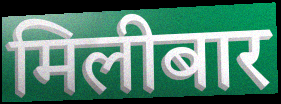
मिलीबार